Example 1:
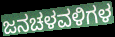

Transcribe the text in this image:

ಜನಚಳವಳಿಗಳ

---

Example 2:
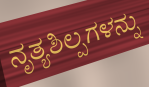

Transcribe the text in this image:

ನೃತ್ಯಶಿಲ್ಪಗಳನ್ನು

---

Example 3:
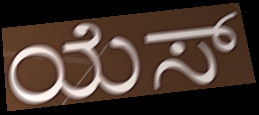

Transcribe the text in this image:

ಯೆಸ್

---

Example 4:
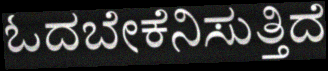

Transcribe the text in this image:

ಓದಬೇಕೆನಿಸುತ್ತಿದೆ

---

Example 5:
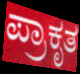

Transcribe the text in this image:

ಪ್ರಾಕೃತ